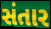
સંતાર